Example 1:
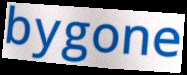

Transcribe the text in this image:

bygone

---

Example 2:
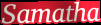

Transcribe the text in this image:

Samatha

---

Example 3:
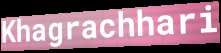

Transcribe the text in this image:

Khagrachhari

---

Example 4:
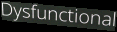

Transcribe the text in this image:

Dysfunctional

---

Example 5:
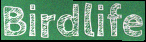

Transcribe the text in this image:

Birdlife